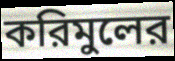
করিমুলের